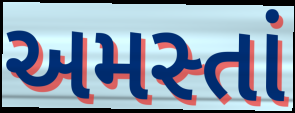
અમસ્તાં